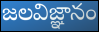
జలవిజ్ఞానం